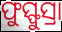
ଫୁସ୍ଫୁସ୍ରା